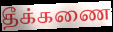
தீக்கணை